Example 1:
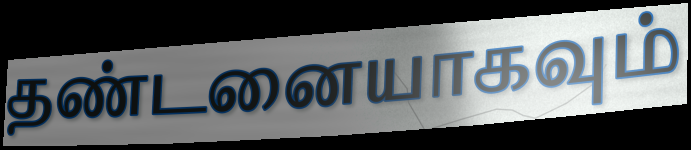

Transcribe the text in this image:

தண்டனையாகவும்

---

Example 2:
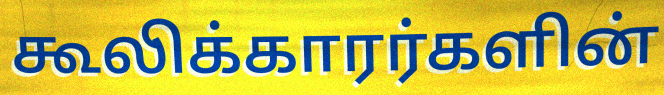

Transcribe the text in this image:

கூலிக்காரர்களின்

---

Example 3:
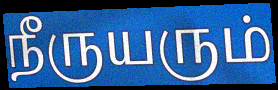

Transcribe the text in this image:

நீருயரும்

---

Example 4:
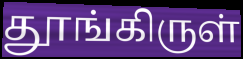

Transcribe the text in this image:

தூங்கிருள்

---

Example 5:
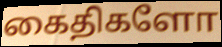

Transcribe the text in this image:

கைதிகளோ